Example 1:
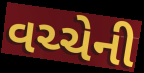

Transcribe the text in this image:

વચ્ચેની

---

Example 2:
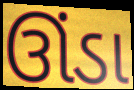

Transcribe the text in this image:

ઊંડા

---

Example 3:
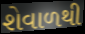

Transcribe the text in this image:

શેવાળથી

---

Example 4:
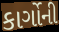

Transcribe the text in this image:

કાર્ગોની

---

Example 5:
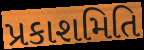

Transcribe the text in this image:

પ્રકાશમિતિ